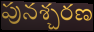
పునశ్చరణ